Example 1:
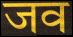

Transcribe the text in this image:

जव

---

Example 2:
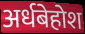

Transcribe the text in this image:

अर्धबेहोश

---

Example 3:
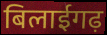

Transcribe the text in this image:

बिलाईगढ़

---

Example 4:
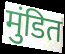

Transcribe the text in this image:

मुंडित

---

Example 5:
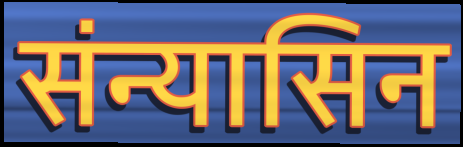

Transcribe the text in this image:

संन्यासिन